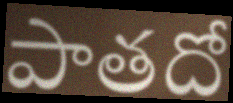
పాతదో